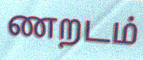
ணறடம்